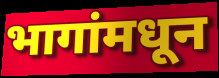
भागांमधून